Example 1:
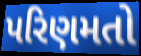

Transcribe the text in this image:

પરિણમતો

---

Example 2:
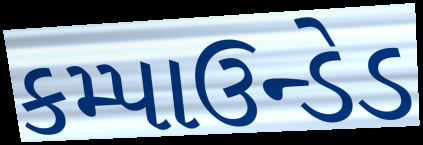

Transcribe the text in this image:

કમ્પાઉન્ડેડ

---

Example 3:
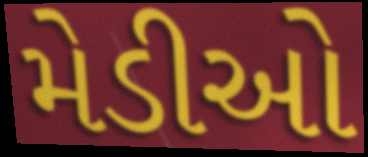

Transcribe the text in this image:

મેડીઓ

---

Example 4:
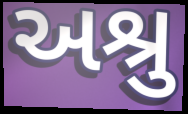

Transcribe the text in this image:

અશ્રુ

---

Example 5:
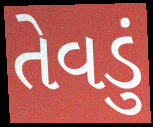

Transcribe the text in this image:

તેવડું